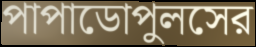
পাপাডোপুলসের